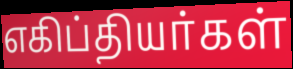
எகிப்தியர்கள்